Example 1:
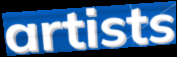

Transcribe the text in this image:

artists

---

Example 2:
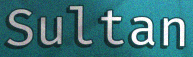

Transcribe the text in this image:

Sultan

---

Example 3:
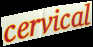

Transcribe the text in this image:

cervical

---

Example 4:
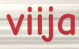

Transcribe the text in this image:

viija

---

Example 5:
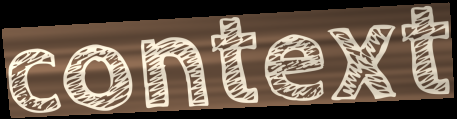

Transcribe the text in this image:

context